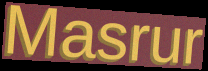
Masrur